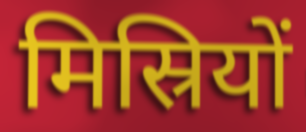
मिस्रियों